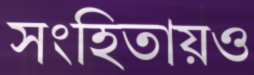
সংহিতায়ও